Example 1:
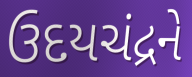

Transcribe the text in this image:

ઉદયચંદ્રને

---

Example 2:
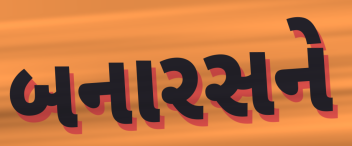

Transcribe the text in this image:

બનારસને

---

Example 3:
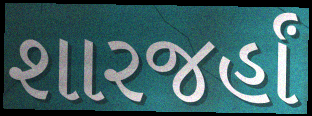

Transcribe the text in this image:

શારજર્હાં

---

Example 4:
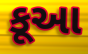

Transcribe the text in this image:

કૂઆ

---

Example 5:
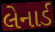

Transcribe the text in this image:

લેનાર્ડ